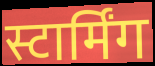
स्टार्मिंग